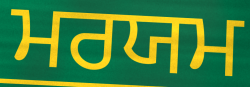
ਮਰਯਮ